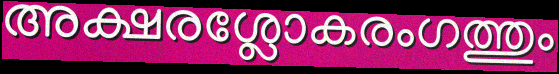
അക്ഷരശ്ലോകരംഗത്തും